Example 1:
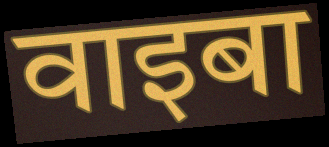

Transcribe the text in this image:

वाइबा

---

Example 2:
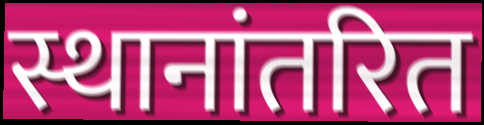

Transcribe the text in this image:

स्थानांतरित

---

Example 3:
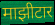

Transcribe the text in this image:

माझीटार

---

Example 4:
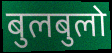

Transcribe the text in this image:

बुलबुलो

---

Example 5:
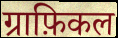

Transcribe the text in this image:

ग्राफ़िकल